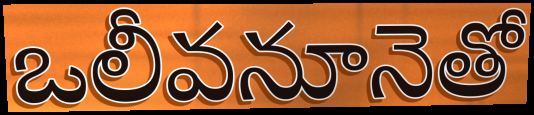
ఒలీవనూనెతో